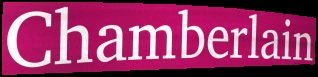
Chamberlain